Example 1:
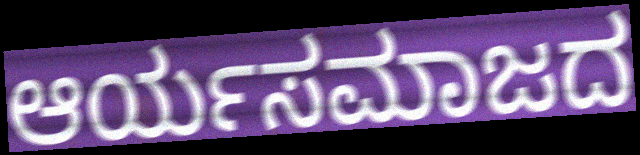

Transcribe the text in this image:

ಆರ್ಯಸಮಾಜದ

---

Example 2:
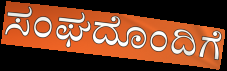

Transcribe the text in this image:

ಸಂಘದೊಂದಿಗೆ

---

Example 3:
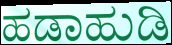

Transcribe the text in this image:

ಹಡಾಹುಡಿ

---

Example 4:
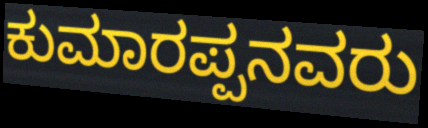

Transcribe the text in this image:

ಕುಮಾರಪ್ಪನವರು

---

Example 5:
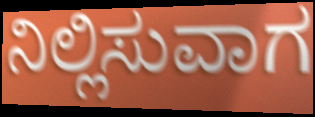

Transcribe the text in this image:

ನಿಲ್ಲಿಸುವಾಗ